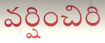
వర్షించిరి